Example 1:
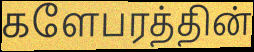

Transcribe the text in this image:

களேபரத்தின்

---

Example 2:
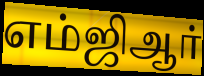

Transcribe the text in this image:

எம்ஜிஆர்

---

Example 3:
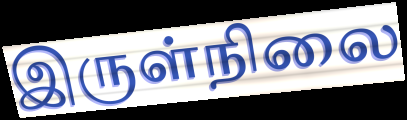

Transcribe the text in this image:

இருள்நிலை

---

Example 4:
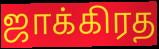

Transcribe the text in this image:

ஜாக்கிரத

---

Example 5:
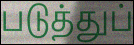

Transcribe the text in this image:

படுத்துப்